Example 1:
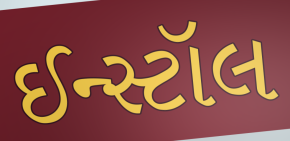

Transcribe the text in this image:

ઈન્સ્ટૉલ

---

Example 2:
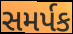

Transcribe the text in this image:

સમર્પક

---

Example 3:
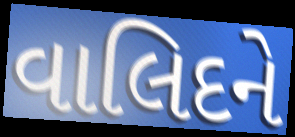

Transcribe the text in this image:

વાલિદને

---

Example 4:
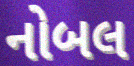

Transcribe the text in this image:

નોબલ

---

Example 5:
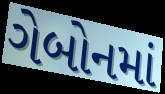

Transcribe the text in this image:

ગેબોનમાં